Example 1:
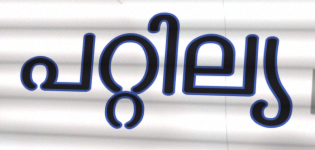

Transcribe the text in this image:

പറ്റില്യ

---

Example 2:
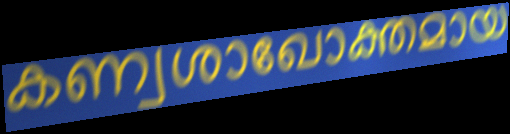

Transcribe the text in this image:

കണ്വശാഖോക്തമായ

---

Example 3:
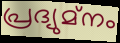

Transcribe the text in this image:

പ്രദ്യുമ്നം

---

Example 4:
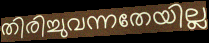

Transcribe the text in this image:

തിരിച്ചുവന്നതേയില്ല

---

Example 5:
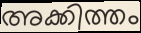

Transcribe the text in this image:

അക്കിത്തം